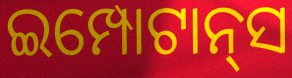
ଇମ୍ପୋଟାନ୍‌ସ